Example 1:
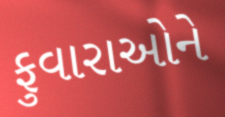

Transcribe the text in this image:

ફુવારાઓને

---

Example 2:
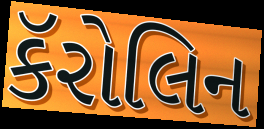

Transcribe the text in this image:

કૅરોલિન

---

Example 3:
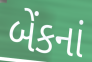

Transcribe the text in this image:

બેંકનાં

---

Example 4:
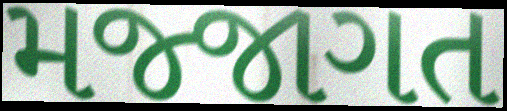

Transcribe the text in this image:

મજ્જાગત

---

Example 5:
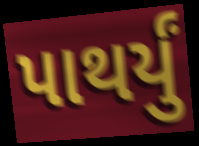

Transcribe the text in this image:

પાથર્યું